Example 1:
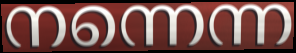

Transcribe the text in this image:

നന്നെന്ന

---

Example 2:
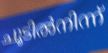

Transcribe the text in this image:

ചൂടിൽനിന്ന്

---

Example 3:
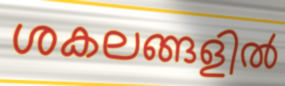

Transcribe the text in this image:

ശകലങ്ങളിൽ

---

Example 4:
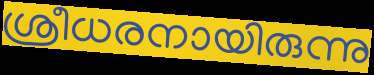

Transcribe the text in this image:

ശ്രീധരനായിരുന്നു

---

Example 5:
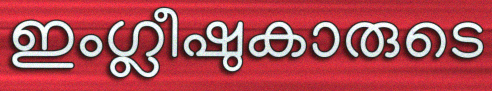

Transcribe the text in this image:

ഇംഗ്ലീഷുകാരുടെ